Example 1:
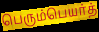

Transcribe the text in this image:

பெரும்பெயர்த்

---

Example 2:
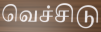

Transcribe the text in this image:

வெச்சிடு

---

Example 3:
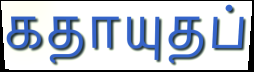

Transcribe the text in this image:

கதாயுதப்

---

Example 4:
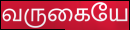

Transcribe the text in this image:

வருகையே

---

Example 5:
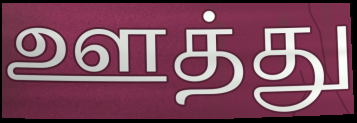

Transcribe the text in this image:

ஊத்து